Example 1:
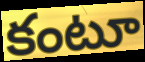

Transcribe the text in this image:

కంటూ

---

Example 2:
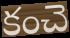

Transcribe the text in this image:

కంచె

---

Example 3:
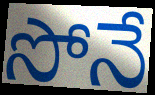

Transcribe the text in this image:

సోనే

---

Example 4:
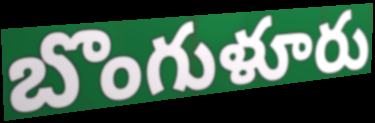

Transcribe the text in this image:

బొంగుళూరు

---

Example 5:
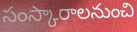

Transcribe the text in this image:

సంస్కారాలనుంచి